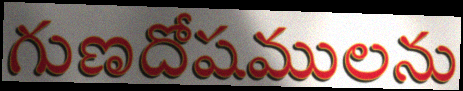
గుణదోషములను